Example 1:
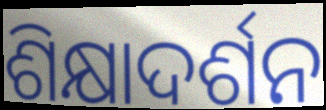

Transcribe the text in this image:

ଶିକ୍ଷାଦର୍ଶନ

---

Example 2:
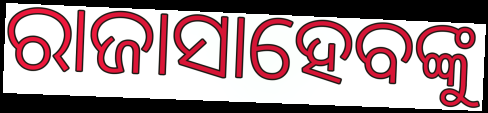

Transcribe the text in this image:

ରାଜାସାହେବଙ୍କୁ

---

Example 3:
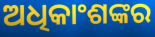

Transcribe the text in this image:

ଅଧିକାଂଶଙ୍କର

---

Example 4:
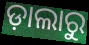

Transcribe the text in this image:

ଡ଼ାଲାରୁ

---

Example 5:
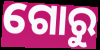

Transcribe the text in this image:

ଗୋରୁ